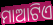
ମାଆଟିଏ